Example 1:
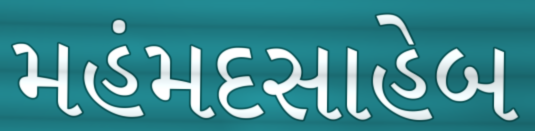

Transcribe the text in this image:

મહંમદસાહેબ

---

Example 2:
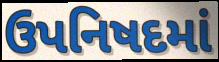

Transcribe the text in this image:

ઉપનિષદમાં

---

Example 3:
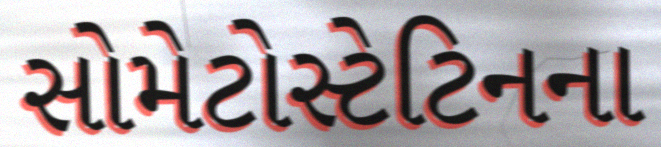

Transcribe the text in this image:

સોમેટોસ્ટેટિનના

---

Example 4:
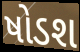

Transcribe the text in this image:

ષોડશ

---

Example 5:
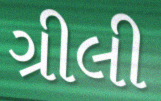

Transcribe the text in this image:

ગ્રીલી